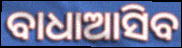
ବାଧାଆସିବ